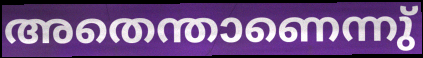
അതെന്താണെന്നു്